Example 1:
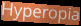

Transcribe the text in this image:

Hyperopia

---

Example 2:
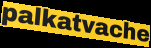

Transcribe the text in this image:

palkatvache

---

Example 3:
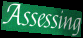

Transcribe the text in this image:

Assessing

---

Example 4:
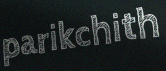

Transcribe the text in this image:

parikchith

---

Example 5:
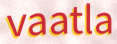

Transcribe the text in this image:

vaatla